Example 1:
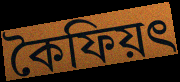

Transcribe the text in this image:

কৈফিয়ৎ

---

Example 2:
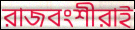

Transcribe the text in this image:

রাজবংশীরাই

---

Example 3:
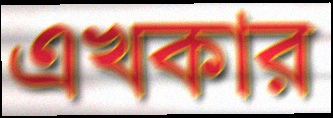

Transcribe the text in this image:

এখকার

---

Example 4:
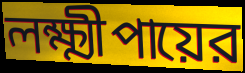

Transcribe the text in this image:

লক্ষ্মীপায়ের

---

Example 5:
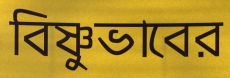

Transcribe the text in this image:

বিষ্ণুভাবের